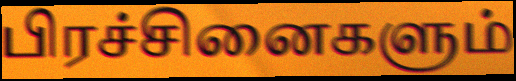
பிரச்சினைகளும்